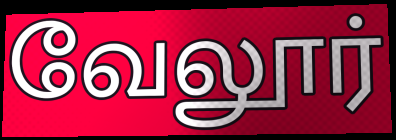
வேலூர்